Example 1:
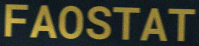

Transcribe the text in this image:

FAOSTAT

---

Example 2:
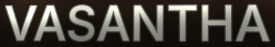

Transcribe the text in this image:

VASANTHA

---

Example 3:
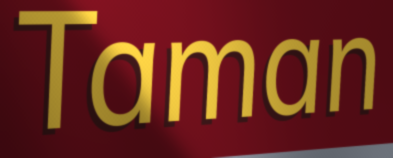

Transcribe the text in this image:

Taman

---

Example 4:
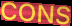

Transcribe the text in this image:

CONS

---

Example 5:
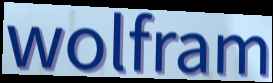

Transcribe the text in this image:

wolfram